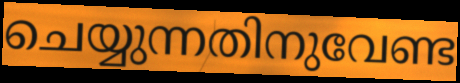
ചെയ്യുന്നതിനുവേണ്ട